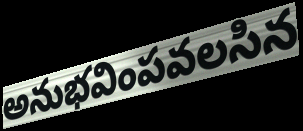
అనుభవింపవలసిన